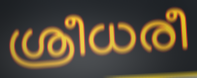
ശ്രീധരീ